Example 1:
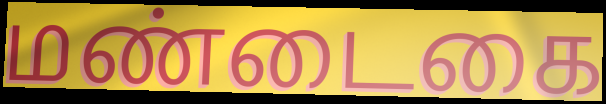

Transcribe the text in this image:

மண்டைகை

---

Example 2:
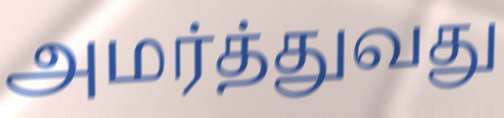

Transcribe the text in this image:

அமர்த்துவது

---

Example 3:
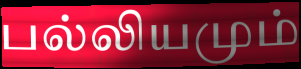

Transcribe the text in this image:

பல்லியமும்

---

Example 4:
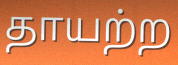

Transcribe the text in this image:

தாயற்ற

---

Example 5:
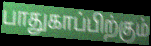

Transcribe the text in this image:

பாதுகாப்பிற்கும்